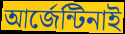
আর্জেন্টিনাই